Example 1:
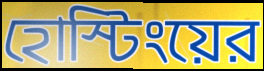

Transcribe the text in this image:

হোস্টিংয়ের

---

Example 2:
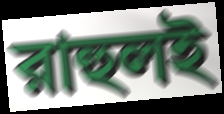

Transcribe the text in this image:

রাহুলই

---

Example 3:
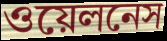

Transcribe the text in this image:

ওয়েলনেস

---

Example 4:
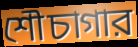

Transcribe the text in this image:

শৌচাগার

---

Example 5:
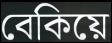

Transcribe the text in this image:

বেকিয়ে